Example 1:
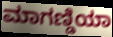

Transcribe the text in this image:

ಮಾಗಣ್ಡಿಯಾ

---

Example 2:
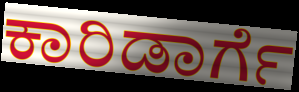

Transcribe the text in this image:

ಕಾರಿಡಾರ್ಗೆ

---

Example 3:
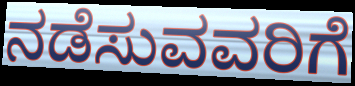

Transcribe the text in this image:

ನಡೆಸುವವರಿಗೆ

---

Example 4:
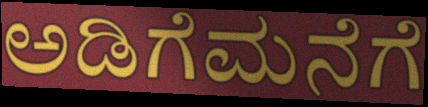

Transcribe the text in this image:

ಅಡಿಗೆಮನೆಗೆ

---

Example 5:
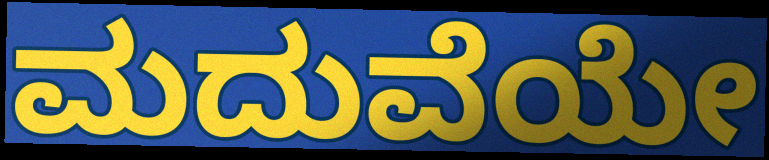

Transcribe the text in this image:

ಮದುವೆಯೇ